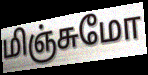
மிஞ்சுமோ